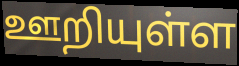
ஊறியுள்ள